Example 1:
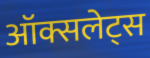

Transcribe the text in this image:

ऑक्सलेट्स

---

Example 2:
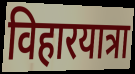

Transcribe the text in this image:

विहारयात्रा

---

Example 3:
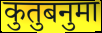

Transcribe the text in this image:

कुतुबनुमा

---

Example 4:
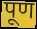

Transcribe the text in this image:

पूण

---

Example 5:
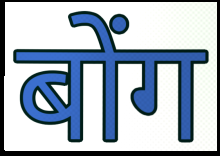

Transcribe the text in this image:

बोंग